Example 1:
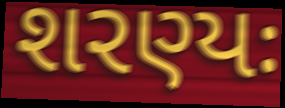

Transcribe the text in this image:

શરણ્યઃ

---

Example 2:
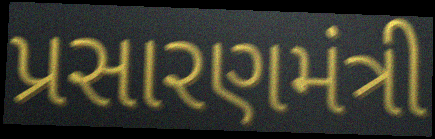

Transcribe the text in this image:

પ્રસારણમંત્રી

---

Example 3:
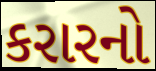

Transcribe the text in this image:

કરારનો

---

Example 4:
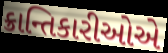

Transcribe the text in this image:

ક્રાન્તિકારીઓએ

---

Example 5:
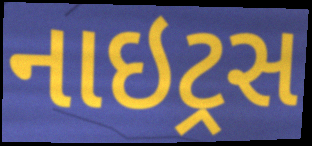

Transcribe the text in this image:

નાઇટ્રસ